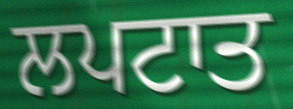
ਲਪਟਾਤ